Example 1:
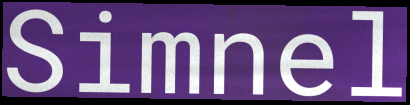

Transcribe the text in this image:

Simnel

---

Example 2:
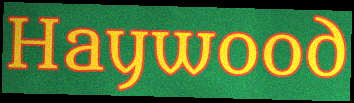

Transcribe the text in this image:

Haywood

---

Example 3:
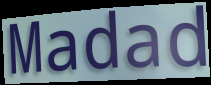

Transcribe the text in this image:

Madad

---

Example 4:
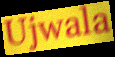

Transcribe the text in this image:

Ujwala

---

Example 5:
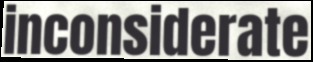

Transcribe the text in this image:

inconsiderate